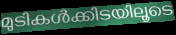
മുടികൾക്കിടയിലൂടെ